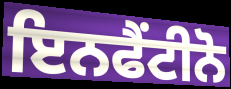
ਇਨਫੈਂਟੀਨੋ